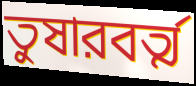
তুষারবর্ত্ম